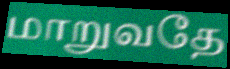
மாறுவதே